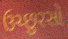
ઉચ્છુરસો